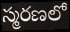
స్మరణలో